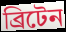
ব্রিটেন